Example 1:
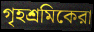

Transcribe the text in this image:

গৃহশ্রমিকেরা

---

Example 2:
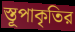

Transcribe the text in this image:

স্তূপাকৃতির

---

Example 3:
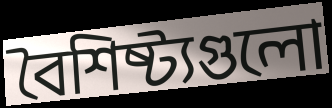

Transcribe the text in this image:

বৈশিষ্ট্যগুলো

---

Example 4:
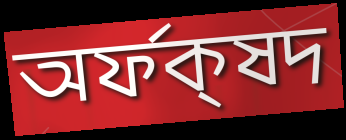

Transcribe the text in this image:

অর্ফক্‌ষদ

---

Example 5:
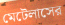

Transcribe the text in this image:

মেটেলাসের